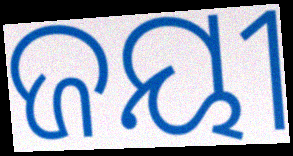
ଜୟୀ